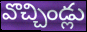
వొచ్చిండ్లు